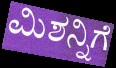
ಮಿಶನ್ನಿಗೆ